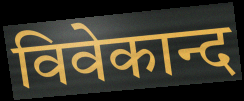
विवेकान्द